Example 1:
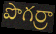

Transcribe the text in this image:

పొగర్రా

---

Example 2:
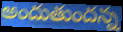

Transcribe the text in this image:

అందుతుందన్న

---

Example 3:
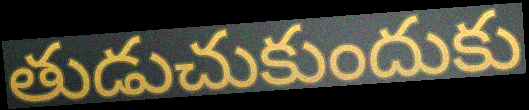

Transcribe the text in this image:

తుడుచుకుందుకు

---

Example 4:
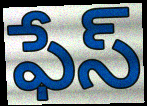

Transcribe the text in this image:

ఫేస్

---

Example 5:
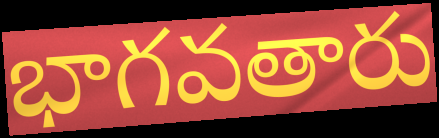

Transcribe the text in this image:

భాగవతారు